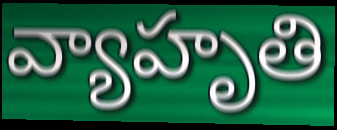
వ్యాహృతి